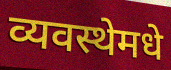
व्यवस्थेमधे